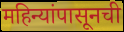
महिन्यांपासूनची